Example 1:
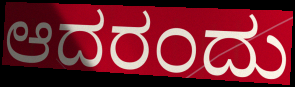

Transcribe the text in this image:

ಆದರಂದು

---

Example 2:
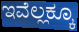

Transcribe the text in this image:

ಇವೆಲ್ಲಕ್ಕೂ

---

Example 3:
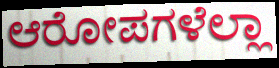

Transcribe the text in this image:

ಆರೋಪಗಳೆಲ್ಲಾ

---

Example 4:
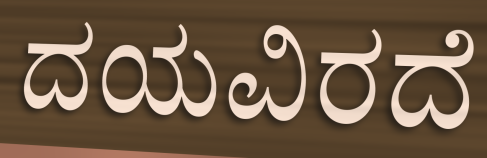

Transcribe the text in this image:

ದಯವಿರದೆ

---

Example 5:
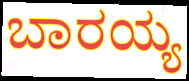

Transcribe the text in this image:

ಬಾರಯ್ಯ